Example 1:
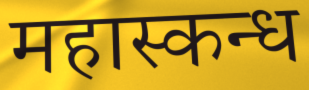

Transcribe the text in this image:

महास्कन्ध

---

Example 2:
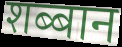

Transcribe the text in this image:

शब्बान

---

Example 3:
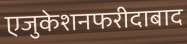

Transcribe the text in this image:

एजुकेशनफरीदाबाद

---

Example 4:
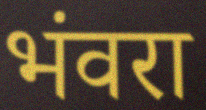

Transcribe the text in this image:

भंवरा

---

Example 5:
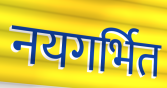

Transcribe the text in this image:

नयगर्भित